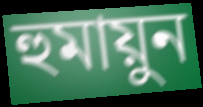
হুমায়ুন